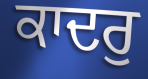
ਕਾਦਰੁ